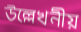
উল্লেখনীয়